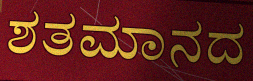
ಶತಮಾನದ